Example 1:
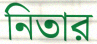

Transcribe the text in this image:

নিতার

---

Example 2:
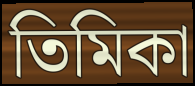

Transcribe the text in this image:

তিমিকা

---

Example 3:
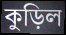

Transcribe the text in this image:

কুড়িল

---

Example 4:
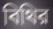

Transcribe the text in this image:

বিথির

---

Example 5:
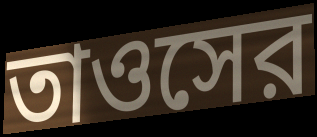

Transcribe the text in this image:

তাওসের